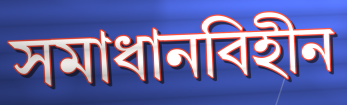
সমাধানবিহীন